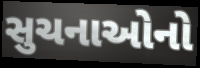
સુચનાઓનો